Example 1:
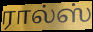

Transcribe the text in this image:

ரால்ஸ்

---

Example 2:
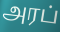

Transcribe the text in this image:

அரப்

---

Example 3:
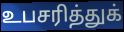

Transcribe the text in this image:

உபசரித்துக்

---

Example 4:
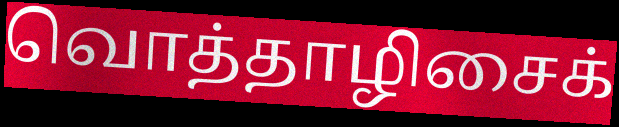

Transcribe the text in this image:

வொத்தாழிசைக்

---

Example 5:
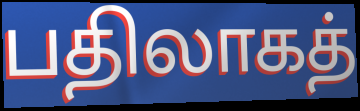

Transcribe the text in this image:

பதிலாகத்